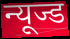
न्यूज्ड